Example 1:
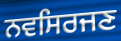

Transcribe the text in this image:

ਨਵਸਿਰਜਣ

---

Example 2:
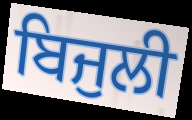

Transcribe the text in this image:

ਬਿਜੁਲੀ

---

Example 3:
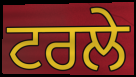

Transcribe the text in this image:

ਟਰਲੇ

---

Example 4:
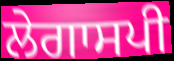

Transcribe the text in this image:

ਲੇਗਾਸਪੀ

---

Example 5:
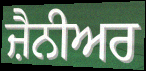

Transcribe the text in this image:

ਜ਼ੈਨੀਅਰ